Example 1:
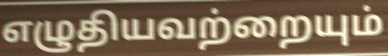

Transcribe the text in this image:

எழுதியவற்றையும்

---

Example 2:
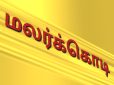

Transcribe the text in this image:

மலர்க்கொடி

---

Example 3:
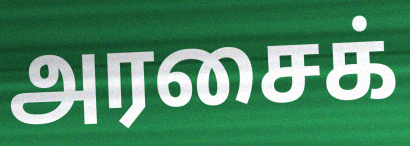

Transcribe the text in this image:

அரசைக்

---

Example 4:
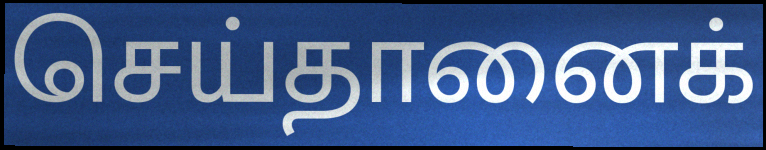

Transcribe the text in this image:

செய்தானைக்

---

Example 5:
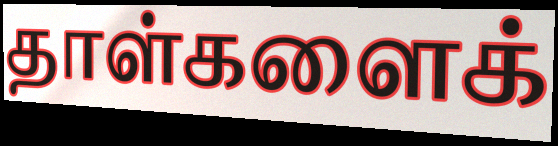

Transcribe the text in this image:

தாள்களைக்